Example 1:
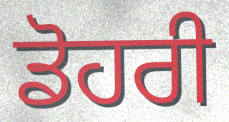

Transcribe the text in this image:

ਡੋਹਰੀ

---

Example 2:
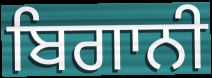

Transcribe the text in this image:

ਬਿਗਾਨੀ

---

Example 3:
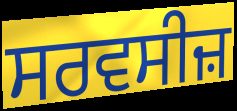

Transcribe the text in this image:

ਸਰਵਸੀਜ਼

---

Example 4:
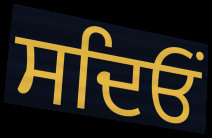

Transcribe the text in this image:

ਸਦਿਓਂ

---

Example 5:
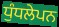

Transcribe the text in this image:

ਧੁੰਧਲੇਪਨ